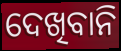
ଦେଖିବାନି